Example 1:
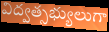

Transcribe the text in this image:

విద్వత్సభ్యులుగా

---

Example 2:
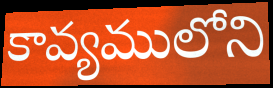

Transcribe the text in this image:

కావ్యములోని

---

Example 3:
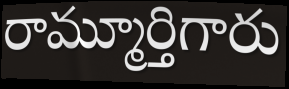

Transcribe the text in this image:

రామ్మూర్తిగారు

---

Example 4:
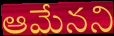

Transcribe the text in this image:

ఆమేనని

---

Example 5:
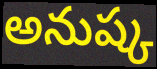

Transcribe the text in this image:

అనుష్క